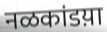
नळकांडय़ा